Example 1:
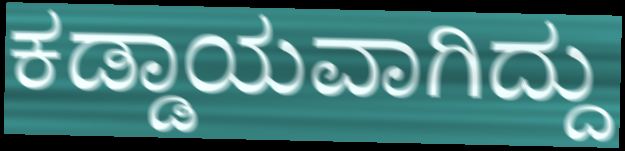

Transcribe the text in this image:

ಕಡ್ಡಾಯವಾಗಿದ್ದು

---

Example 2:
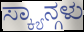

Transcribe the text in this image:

ಸ್ಕ್ಯಾನ್ಗಳು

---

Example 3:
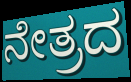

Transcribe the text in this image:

ನೇತ್ರದ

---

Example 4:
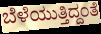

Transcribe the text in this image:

ಬೆಳೆಯುತ್ತಿದ್ದಂತೆ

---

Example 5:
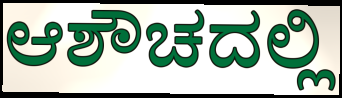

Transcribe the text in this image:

ಆಶೌಚದಲ್ಲಿ